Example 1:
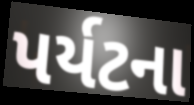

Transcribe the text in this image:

પર્યટના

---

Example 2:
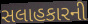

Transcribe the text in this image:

સલાહકારની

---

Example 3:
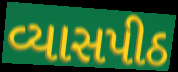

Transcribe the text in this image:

વ્યાસપીઠ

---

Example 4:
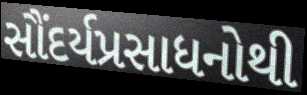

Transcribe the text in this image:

સૌંદર્યપ્રસાધનોથી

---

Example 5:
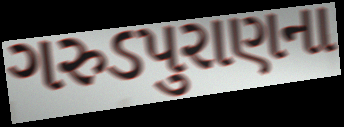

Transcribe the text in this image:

ગરુડપુરાણના